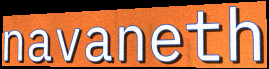
navaneth